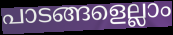
പാടങ്ങളെല്ലാം